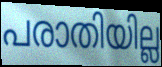
പരാതിയില്ല